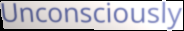
Unconsciously